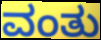
ವಂತು